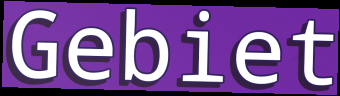
Gebiet